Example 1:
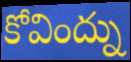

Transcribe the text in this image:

కోవింద్ను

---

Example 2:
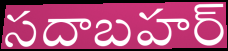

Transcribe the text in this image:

సదాబహర్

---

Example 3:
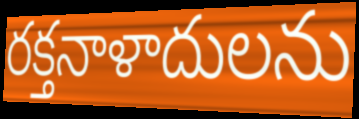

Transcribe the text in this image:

రక్తనాళాదులను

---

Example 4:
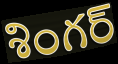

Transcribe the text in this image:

శింగర్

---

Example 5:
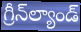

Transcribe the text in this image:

గ్రీన్‌ల్యాండ్